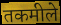
तकमीले